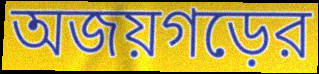
অজয়গড়ের